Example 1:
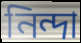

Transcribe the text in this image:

নিন্দা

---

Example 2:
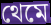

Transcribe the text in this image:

থেমে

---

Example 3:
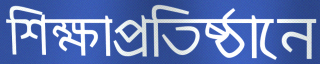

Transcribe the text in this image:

শিক্ষাপ্রতিষ্ঠানে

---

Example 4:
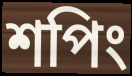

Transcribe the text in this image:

শপিং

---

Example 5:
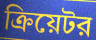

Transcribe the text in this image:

ক্রিয়েটর